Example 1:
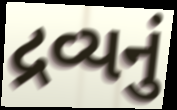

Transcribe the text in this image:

દ્રવ્યનું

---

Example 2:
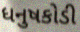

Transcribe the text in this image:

ધનુષકોડી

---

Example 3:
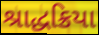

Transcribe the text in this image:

શ્રાદ્ધક્રિયા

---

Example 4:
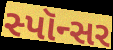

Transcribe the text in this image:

સ્પૉન્સર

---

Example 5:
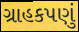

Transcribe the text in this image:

ગ્રાહકપણું